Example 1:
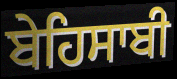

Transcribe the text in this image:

ਬੇਹਿਸਾਬੀ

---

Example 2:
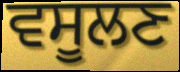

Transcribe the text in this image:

ਵਸੂਲਣ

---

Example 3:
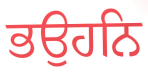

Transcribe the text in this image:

ਭਉਹਨਿ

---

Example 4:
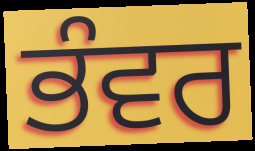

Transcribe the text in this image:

ਭੰਵਰ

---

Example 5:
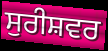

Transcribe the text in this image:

ਸੁਰੀਸ਼ਵਰ